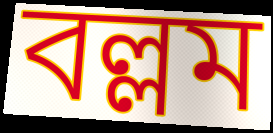
বল্লম